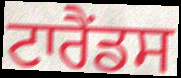
ਟਾਰੈਂਡਸ